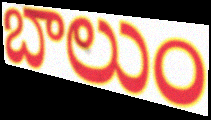
బాలుం